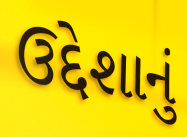
ઉદ્દેશાનું